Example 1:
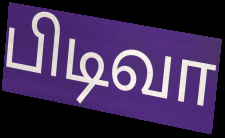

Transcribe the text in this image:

பிடிவா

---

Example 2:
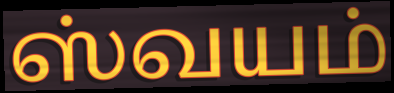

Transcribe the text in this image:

ஸ்வயம்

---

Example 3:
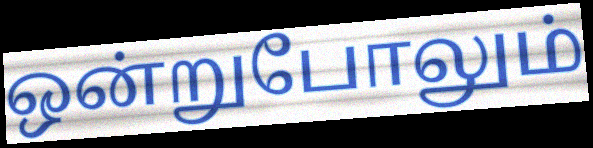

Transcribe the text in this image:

ஒன்றுபோலும்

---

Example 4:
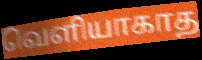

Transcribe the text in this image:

வெளியாகாத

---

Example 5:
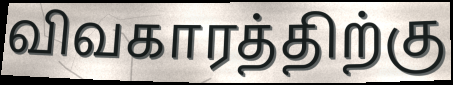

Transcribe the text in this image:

விவகாரத்திற்கு